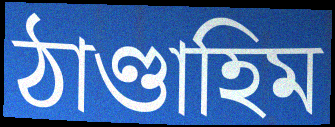
ঠাণ্ডাহিম